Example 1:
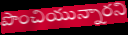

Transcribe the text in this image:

పొంచియున్నారని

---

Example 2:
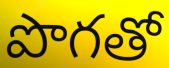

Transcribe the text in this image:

పొగతో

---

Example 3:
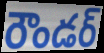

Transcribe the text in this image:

రౌండర్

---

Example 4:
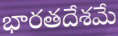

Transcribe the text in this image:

భారతదేశమే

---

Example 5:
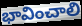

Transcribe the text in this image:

భావించాలి